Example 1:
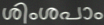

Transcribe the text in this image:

ശിംശപാം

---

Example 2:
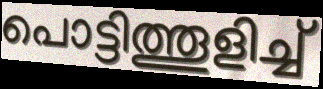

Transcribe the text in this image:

പൊട്ടിത്തൂളിച്ച്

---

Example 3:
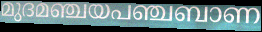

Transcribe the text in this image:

മുദമഞ്ചയപഞ്ചബാണ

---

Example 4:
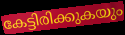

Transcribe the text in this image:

കേട്ടിരിക്കുകയും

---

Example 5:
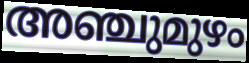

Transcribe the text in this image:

അഞ്ചുമുഴം